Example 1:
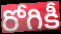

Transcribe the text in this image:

రోగికీ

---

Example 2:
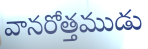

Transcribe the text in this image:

వానరోత్తముడు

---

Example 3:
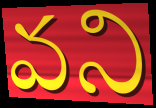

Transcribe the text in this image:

వని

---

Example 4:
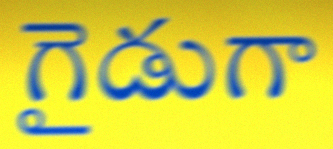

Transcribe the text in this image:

గైడుగా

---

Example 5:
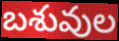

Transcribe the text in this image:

బశువుల